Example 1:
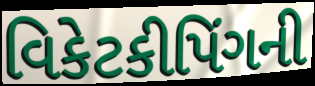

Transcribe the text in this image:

વિકેટકીપિંગની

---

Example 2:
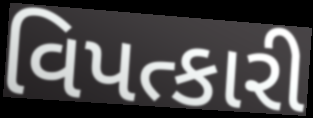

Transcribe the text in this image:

વિપત્કારી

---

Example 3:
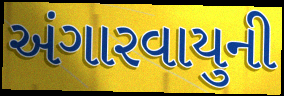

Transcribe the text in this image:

અંગારવાયુની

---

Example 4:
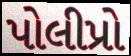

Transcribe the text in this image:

પોલીપ્રો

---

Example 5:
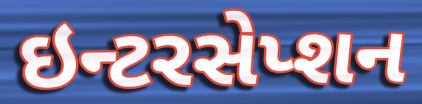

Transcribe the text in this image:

ઇન્ટરસેપ્શન